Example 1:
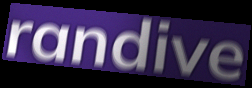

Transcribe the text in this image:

randive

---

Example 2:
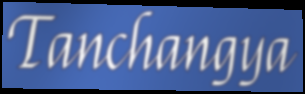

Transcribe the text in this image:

Tanchangya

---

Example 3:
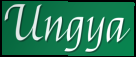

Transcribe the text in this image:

Ungya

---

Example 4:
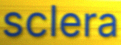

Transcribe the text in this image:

sclera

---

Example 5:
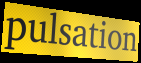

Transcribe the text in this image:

pulsation